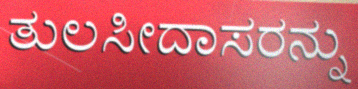
ತುಲಸೀದಾಸರನ್ನು